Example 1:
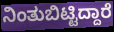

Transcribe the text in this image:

ನಿಂತುಬಿಟ್ಟಿದ್ದಾರೆ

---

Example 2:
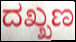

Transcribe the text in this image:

ದಖ್ಖಣ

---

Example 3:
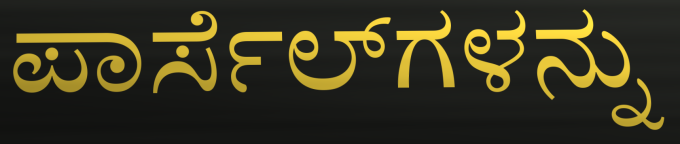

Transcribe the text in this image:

ಪಾರ್ಸೆಲ್‌ಗಳನ್ನು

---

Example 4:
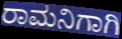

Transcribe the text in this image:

ರಾಮನಿಗಾಗಿ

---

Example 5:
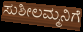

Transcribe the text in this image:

ಸುಶೀಲಮ್ಮನಿಗೆ